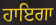
ਹਾਇਗਾ